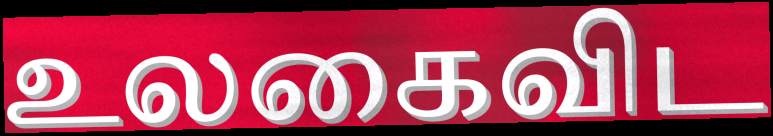
உலகைவிட